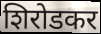
शिरोडकर